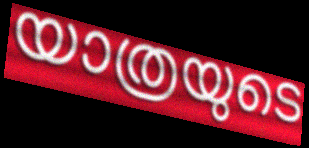
യാത്രയുടെ